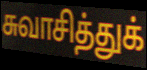
சுவாசித்துக்